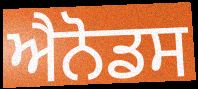
ਐਨੋਡਸ